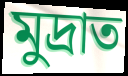
মুদ্ৰাত